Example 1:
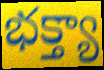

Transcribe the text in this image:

భక్త్యా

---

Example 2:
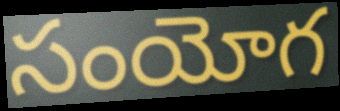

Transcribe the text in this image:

సంయోగ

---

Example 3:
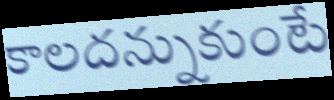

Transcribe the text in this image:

కాలదన్నుకుంటే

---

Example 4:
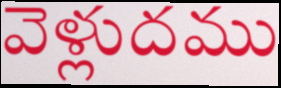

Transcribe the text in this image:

వెళ్లుదము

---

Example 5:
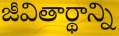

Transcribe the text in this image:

జీవితార్థాన్ని